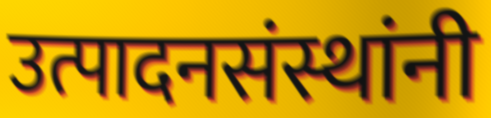
उत्पादनसंस्थांनी